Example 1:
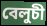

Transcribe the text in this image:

বেলুচী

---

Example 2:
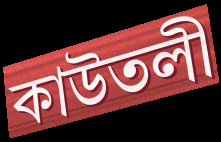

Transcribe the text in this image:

কাউতলী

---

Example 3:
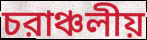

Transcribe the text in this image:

চরাঞ্চলীয়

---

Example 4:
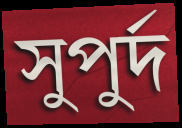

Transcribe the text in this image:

সুপুর্দ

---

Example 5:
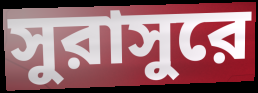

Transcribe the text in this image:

সুরাসুরে